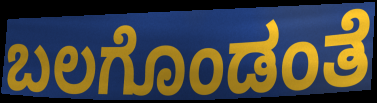
ಬಲಗೊಂಡಂತೆ